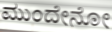
ಮುಂದೇನೋ